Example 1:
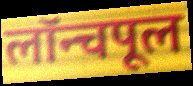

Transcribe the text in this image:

लॉन्चपूल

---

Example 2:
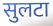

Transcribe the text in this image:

सुलटा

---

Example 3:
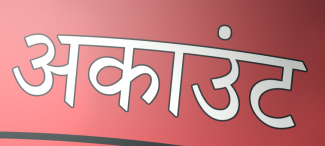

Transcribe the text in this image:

अकाउंट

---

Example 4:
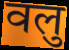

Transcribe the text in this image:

वलु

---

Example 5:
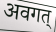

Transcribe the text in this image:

अवगत्